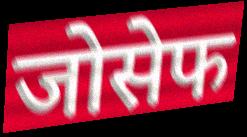
जोसेफ